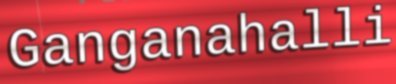
Ganganahalli